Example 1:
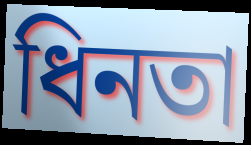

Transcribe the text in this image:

ধিনতা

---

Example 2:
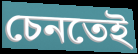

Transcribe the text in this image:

চেনতেই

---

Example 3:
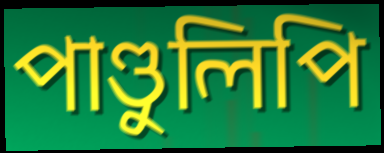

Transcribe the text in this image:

পাণ্ডুলিপি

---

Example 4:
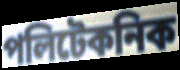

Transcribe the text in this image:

পলিটেকনিক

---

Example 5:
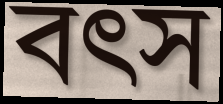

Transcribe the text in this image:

বৎস